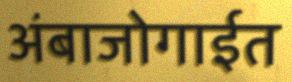
अंबाजोगाईत